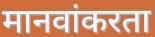
मानवांकरता